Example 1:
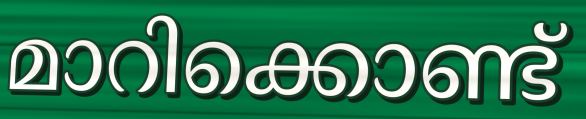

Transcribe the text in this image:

മാറിക്കൊണ്ട്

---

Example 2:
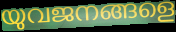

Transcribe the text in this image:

യുവജനങ്ങളെ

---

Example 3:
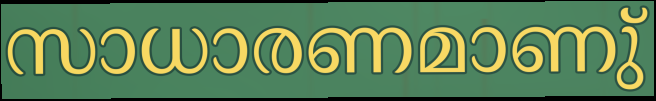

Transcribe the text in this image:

സാധാരണമാണു്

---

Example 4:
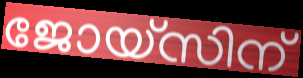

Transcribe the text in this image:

ജോയ്സിന്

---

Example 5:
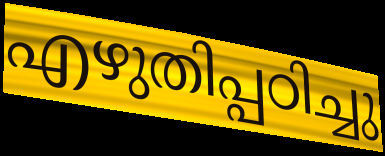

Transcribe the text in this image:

എഴുതിപ്പഠിച്ചു